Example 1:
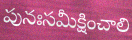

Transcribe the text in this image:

పునఃసమీక్షించాలి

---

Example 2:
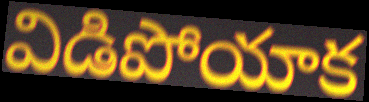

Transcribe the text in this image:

విడిపోయాక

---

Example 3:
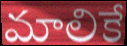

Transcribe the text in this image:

మాలికే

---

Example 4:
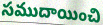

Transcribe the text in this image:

సముదాయించి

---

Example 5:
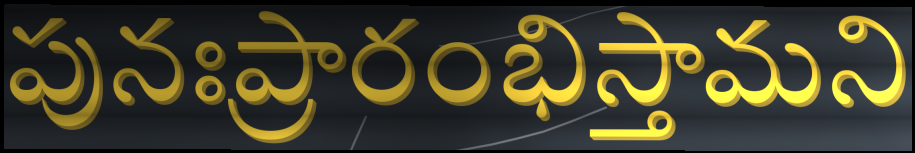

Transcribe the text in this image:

పునఃప్రారంభిస్తామని